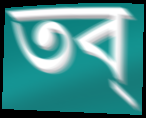
তব্